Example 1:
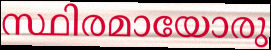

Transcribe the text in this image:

സ്ഥിരമായോരു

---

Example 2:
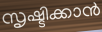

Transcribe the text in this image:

സൃഷ്ടിക്കാൻ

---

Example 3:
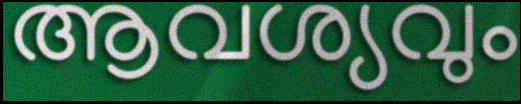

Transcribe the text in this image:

ആവശ്യവും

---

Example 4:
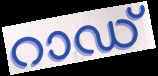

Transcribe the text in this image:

റാഡ്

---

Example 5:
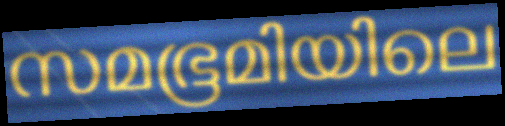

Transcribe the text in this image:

സമഭൂമിയിലെ